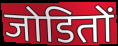
जोडितों